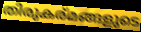
തിരുകര്മങ്ങളുടെ